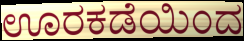
ಊರಕಡೆಯಿಂದ